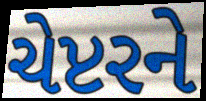
ચેપ્ટરને